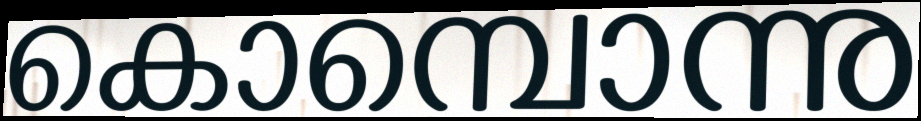
കൊമ്പൊന്നു